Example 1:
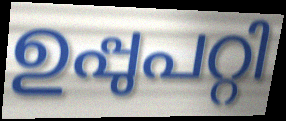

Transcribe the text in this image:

ഉപ്പുപറ്റി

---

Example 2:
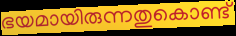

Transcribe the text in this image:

ഭയമായിരുന്നതുകൊണ്ട്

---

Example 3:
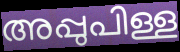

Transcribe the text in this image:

അപ്പുപിള്ള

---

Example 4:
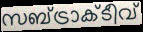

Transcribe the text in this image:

സബ്ട്രാക്ടീവ്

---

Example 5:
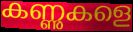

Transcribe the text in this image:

കണ്ണുകളെ